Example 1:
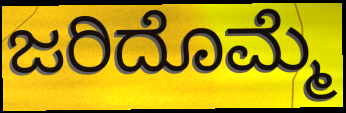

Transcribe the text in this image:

ಜರಿದೊಮ್ಮೆ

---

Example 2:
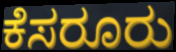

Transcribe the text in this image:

ಕೆಸರೂರು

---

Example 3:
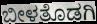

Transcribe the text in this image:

ಬೀಳತೊಡಗಿ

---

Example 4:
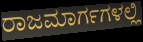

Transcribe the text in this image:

ರಾಜಮಾರ್ಗಗಳಲ್ಲಿ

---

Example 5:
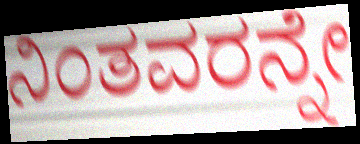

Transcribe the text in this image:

ನಿಂತವರನ್ನೇ